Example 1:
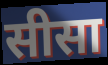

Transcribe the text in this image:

सीसा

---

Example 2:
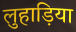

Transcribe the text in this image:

लुहाड़िया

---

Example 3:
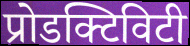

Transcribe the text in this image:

प्रोडक्टिविटी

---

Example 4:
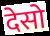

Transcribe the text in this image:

देसो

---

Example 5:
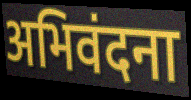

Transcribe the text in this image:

अभिवंदना